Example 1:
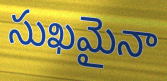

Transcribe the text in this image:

సుఖమైనా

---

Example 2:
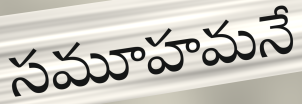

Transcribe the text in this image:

సమూహమనే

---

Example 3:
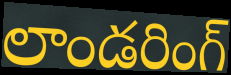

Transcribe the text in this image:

లాండరింగ్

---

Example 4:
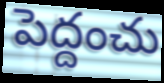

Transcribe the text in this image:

పెద్దంచు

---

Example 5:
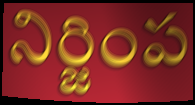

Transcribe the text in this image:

నిర్జింప